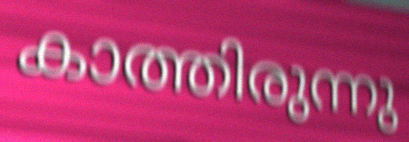
കാത്തിരുന്നു